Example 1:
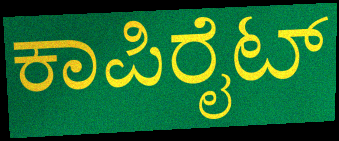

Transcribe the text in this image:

ಕಾಪಿರೈಟ್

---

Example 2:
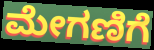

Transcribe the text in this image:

ಮೇಗಣಿಗೆ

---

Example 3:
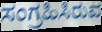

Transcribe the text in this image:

ಸಂಗ್ರಹಿಸಿರುವ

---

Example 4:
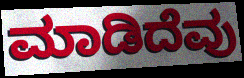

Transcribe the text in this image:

ಮಾಡಿದೆವು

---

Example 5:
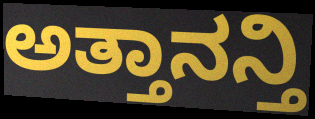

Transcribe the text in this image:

ಅತ್ತಾನನ್ತಿ